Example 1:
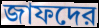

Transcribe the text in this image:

জাফদের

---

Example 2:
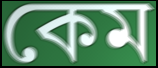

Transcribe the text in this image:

কেম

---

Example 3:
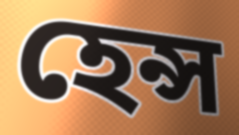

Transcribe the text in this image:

হেন্স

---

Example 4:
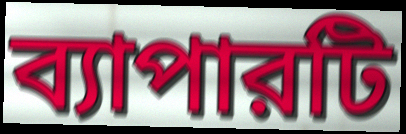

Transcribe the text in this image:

ব্যাপারটি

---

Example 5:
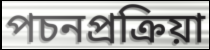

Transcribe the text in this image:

পচনপ্রক্রিয়া